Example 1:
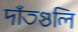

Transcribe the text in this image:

দাঁতগুলি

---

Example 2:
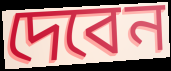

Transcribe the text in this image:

দেবেন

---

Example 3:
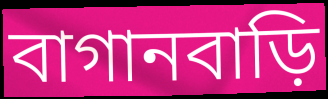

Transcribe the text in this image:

বাগানবাড়ি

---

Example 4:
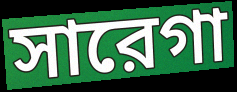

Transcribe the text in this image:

সারেগা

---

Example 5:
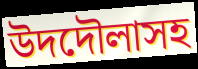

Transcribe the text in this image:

উদদৌলাসহ